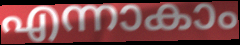
എന്നാകാം